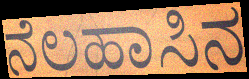
ನೆಲಹಾಸಿನ